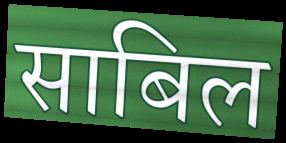
साबिल